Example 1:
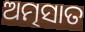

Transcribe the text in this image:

ଅତ୍ମସାତ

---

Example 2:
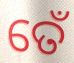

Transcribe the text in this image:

ତେଁ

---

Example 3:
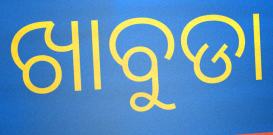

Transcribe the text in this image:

ଖାବୁଡା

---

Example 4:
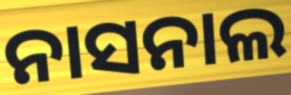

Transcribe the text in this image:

ନାସନାଲ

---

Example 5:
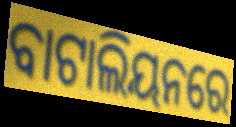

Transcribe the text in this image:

ବାଟାଲିୟନରେ